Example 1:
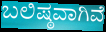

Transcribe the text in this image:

ಬಲಿಷ್ಠವಾಗಿವೆ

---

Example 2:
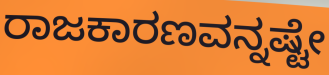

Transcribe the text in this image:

ರಾಜಕಾರಣವನ್ನಷ್ಟೇ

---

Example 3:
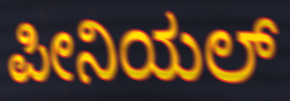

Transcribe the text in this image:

ಪೀನಿಯಲ್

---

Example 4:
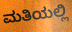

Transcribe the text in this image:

ಮತಿಯಲ್ಲಿ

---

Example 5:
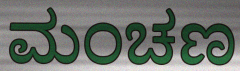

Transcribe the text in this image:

ಮಂಚಣ